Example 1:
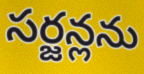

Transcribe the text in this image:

సర్జన్లను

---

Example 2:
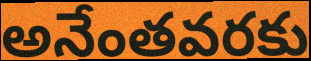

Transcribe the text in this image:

అనేంతవరకు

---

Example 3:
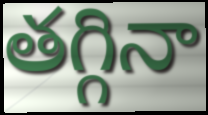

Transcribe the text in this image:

తగ్గినా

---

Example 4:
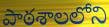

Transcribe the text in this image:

పాఠశాలలోని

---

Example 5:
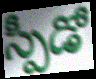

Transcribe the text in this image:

స్పీడో